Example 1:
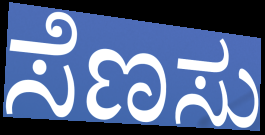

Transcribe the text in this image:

ಸೆಣಸು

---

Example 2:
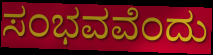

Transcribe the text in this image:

ಸಂಭವವೆಂದು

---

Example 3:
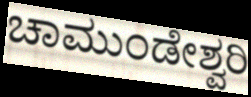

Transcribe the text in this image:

ಚಾಮುಂಡೇಶ್ವರಿ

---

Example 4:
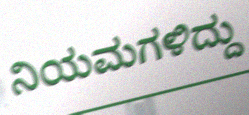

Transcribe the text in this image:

ನಿಯಮಗಳಿದ್ದು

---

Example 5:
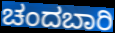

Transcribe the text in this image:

ಚಂದಬಾರಿ